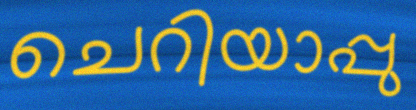
ചെറിയാപ്പു